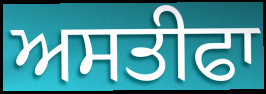
ਅਸਤੀਫਾ